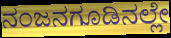
ನಂಜನಗೂಡಿನಲ್ಲೇ